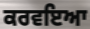
ਕਰਵਇਆ